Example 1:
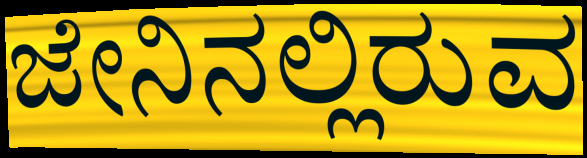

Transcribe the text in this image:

ಜೇನಿನಲ್ಲಿರುವ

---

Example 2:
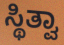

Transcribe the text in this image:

ಸ್ಥಿತ್ವಾ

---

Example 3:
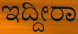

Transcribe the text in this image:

ಇದ್ದೀರಾ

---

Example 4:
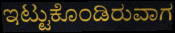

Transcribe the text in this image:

ಇಟ್ಟುಕೊಂಡಿರುವಾಗ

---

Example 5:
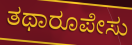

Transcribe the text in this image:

ತಥಾರೂಪೇಸು